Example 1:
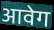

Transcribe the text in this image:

आवेग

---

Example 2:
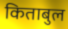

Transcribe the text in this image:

किताबुल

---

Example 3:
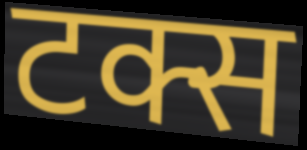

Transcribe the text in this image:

टक्स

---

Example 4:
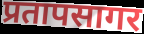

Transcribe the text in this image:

प्रतापसागर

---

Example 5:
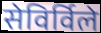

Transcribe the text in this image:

सेविर्विले